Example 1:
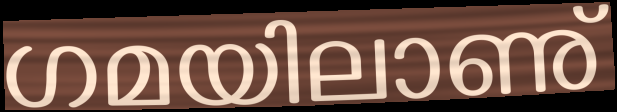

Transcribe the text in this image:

ഗമയിലാണു്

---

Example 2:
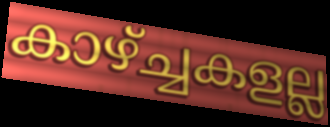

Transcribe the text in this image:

കാഴ്ച്ചകളല്ല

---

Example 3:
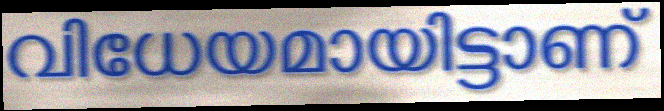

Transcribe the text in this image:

വിധേയമായിട്ടാണ്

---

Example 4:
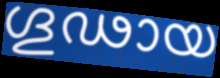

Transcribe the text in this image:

ഗൂഢായ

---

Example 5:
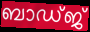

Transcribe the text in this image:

ബാഡ്ജ്